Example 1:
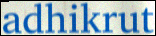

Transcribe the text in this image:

adhikrut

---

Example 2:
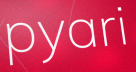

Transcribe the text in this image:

pyari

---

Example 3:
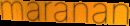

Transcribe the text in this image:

maranan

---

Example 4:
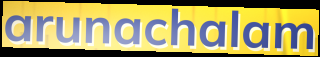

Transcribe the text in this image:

arunachalam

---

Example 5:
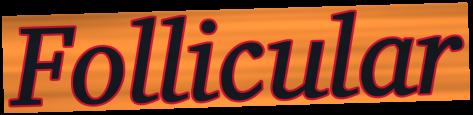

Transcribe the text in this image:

Follicular